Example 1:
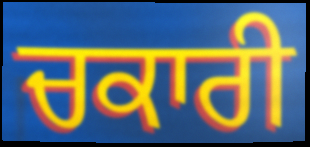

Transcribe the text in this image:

ਚਕਾਰੀ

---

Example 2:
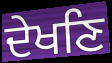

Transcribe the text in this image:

ਦੇਖਣਿ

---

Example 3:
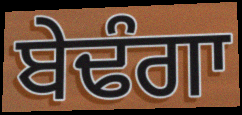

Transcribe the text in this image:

ਬੇਢੰਗਾ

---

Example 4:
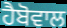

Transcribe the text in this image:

ਹੈਬੋਵਾਲ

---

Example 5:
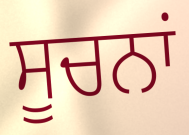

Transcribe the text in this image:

ਸੂਚਨਾਂ